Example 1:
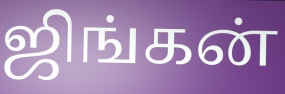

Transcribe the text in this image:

ஜிங்கன்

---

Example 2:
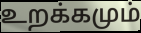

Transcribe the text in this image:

உறக்கமும்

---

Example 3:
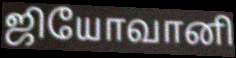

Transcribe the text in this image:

ஜியோவானி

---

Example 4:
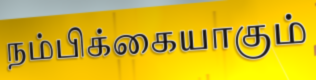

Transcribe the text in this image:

நம்பிக்கையாகும்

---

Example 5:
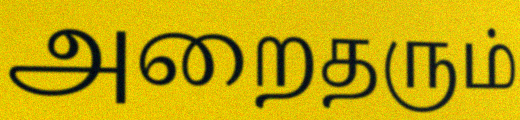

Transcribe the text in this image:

அறைதரும்